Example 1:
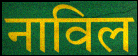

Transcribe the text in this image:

नाविल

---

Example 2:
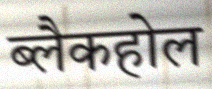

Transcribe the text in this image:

ब्लैकहोल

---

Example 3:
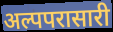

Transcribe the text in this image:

अल्पपरासारी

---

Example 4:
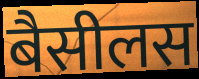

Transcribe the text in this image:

बैसीलस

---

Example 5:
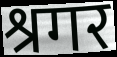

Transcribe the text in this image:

श्रगर